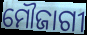
ମୌଜାଗୀ